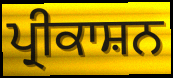
ਪ੍ਰੀਕਾਸ਼ਨ